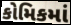
કોમિકમાં